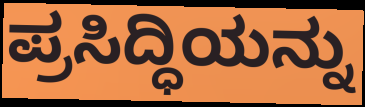
ಪ್ರಸಿದ್ಧಿಯನ್ನು